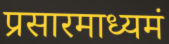
प्रसारमाध्यमं